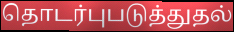
தொடர்புபடுத்துதல்